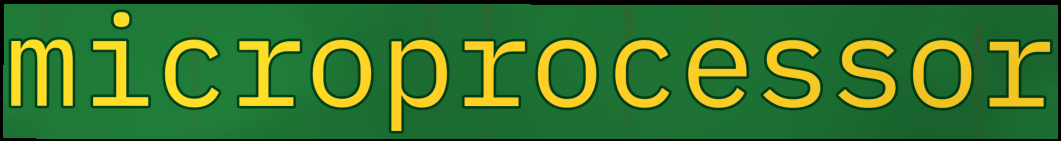
microprocessor